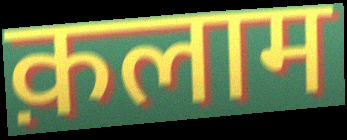
क़लाम